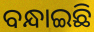
ବନ୍ଧାଇଛି